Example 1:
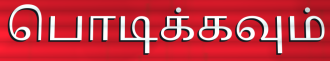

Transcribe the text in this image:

பொடிக்கவும்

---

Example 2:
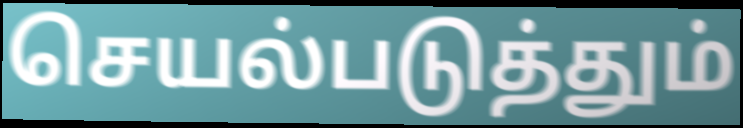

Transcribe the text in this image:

செயல்படுத்தும்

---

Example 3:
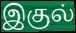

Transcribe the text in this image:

இகுல்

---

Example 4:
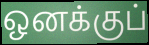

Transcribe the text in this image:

ஒனக்குப்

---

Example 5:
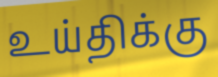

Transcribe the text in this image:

உய்திக்கு